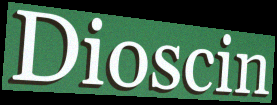
Dioscin